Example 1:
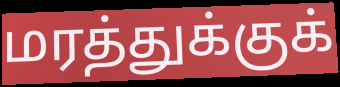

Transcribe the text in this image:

மரத்துக்குக்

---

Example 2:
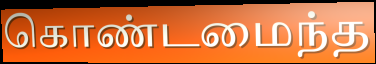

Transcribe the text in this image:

கொண்டமைந்த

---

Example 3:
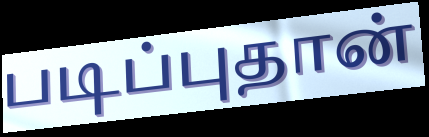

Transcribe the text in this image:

படிப்புதான்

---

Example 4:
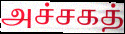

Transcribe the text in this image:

அச்சகத்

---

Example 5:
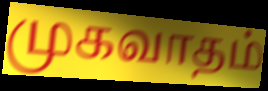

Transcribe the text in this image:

முகவாதம்